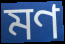
মণ